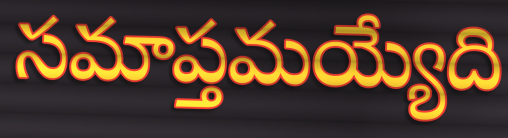
సమాప్తమయ్యేది